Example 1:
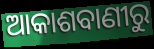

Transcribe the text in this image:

ଆକାଶବାଣୀରୁ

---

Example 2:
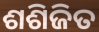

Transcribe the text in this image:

ଶଶିଜିତ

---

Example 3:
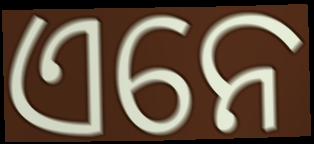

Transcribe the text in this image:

ଏନେ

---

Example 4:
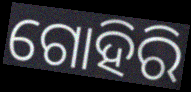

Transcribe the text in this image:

ଗୋହିରି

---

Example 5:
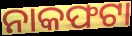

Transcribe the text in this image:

ନାକଫଟା